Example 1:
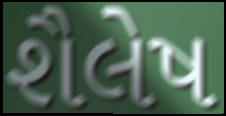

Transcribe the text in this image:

શૈલેષ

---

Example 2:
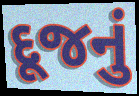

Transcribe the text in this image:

દૂજનું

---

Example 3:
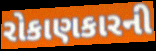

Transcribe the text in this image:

રોકાણકારની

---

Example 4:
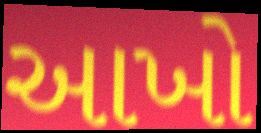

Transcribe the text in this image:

આખો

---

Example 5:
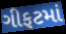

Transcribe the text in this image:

ગીફટમાં